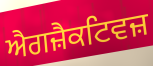
ਐਗਜ਼ੈਕਟਿਵਜ਼